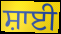
ਸ਼ਾਈ